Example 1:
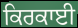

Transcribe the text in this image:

ਕਿਰਕਾਈ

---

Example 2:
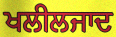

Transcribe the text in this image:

ਖਲੀਲਜਾਦ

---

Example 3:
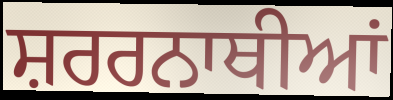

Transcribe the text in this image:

ਸ਼ਰਰਨਾਥੀਆਂ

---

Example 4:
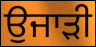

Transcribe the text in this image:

ਉਜਾੜੀ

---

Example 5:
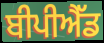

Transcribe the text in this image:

ਬੀਪੀਐੱਡ